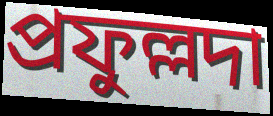
প্রফুল্লদা